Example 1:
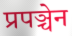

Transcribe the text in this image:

प्रपञ्चेन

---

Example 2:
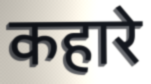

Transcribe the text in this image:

कहारे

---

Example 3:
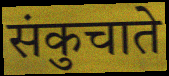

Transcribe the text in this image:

संकुचाते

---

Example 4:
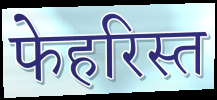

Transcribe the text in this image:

फेहरिस्त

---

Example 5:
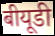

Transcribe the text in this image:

बीयूडी